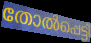
തോൽപ്പെട്ടി